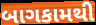
બાગકામથી